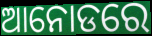
ଆନୋଡରେ